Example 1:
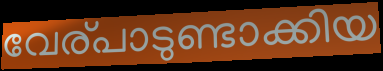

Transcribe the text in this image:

വേര്പാടുണ്ടാക്കിയ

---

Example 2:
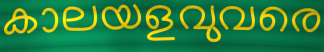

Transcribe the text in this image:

കാലയളവുവരെ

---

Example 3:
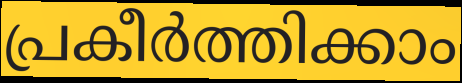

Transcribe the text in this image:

പ്രകീർത്തിക്കാം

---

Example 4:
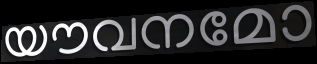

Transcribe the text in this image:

യൗവനമോ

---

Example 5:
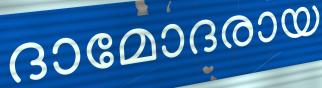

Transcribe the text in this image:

ദാമോദരായ